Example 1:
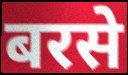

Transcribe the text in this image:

बरसे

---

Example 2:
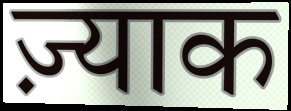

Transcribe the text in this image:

ज़्याक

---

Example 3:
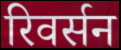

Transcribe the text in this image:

रिवर्सन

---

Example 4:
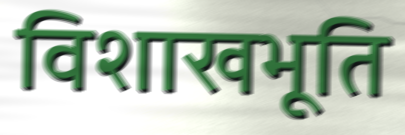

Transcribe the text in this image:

विशाखभूति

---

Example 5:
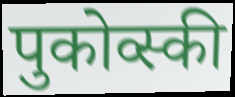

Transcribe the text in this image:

पुकोव्स्की